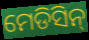
ମେଡିସିନ୍